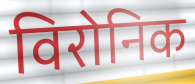
विरोनिक